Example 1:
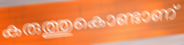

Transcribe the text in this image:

കരുത്തുകൊണ്ടാണ്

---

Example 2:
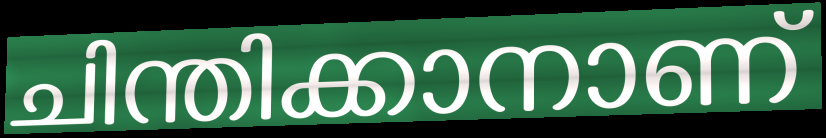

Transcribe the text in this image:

ചിന്തിക്കാനാണ്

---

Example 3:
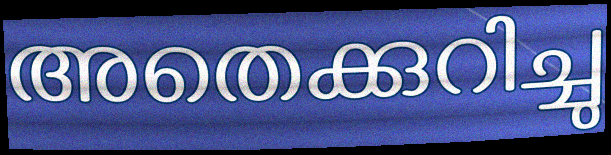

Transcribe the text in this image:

അതെക്കുറിച്ചു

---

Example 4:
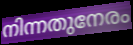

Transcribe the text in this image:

നിന്നതുനേരം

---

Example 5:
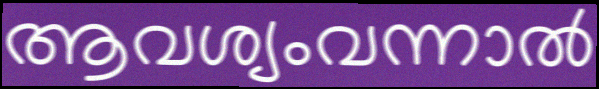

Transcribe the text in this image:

ആവശ്യംവന്നാൽ